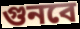
গুনবে